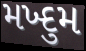
મખ્દુમ